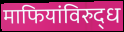
माफियांविरुद्ध